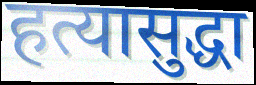
हत्यासुद्धा